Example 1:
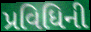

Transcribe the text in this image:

પ્રવિધિની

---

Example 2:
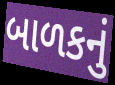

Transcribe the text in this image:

બાળકનું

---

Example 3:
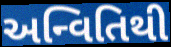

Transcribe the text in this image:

અન્વિતિથી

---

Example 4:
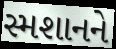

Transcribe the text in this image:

સ્મશાનને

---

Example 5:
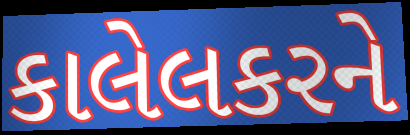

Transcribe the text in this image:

કાલેલકરને